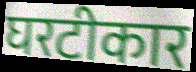
घरटीकार